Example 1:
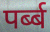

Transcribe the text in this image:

पर्ब्ब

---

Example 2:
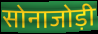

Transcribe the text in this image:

सोनाजोड़ी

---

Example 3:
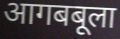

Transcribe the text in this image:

आगबबूला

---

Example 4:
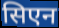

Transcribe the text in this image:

सिएन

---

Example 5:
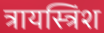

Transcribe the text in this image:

त्रायस्त्रिंश